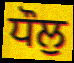
ਧੌਲੁ